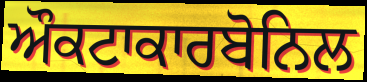
ਔਕਟਾਕਾਰਬੋਨਿਲ